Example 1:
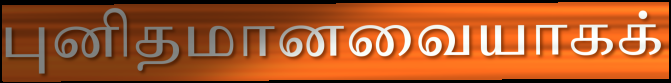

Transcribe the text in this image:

புனிதமானவையாகக்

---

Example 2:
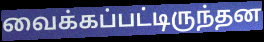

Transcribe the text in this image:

வைக்கப்பட்டிருந்தன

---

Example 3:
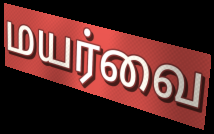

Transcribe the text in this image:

மயர்வை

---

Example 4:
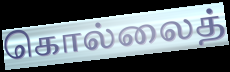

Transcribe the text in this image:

கொல்லைத்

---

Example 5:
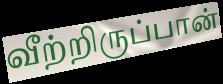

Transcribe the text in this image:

வீற்றிருப்பான்